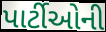
પાર્ટીઓની